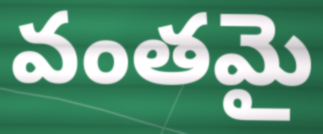
వంతమై